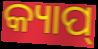
କ୍ୟାପ୍